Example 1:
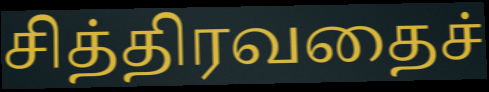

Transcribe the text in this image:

சித்திரவதைச்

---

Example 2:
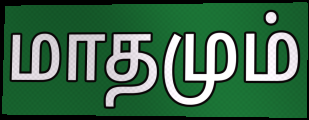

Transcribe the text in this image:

மாதமும்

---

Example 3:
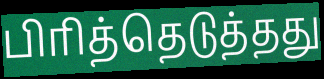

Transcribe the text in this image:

பிரித்தெடுத்தது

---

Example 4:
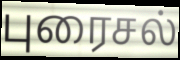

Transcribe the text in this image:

புரைசல்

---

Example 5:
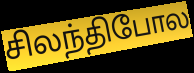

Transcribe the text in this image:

சிலந்திபோல